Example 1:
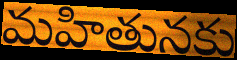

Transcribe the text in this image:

మహితునకు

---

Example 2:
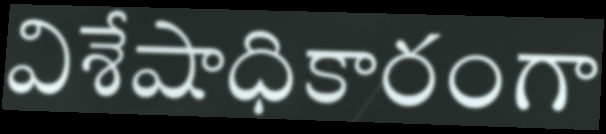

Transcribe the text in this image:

విశేషాధికారంగా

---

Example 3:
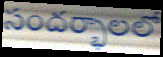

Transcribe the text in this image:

సందర్భాలలో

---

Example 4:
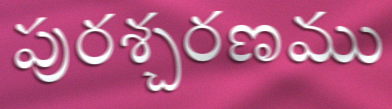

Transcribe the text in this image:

పురశ్చరణము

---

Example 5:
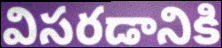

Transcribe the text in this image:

విసరడానికి